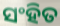
ସଂହିତ